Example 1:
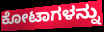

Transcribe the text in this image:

ಕೋಟಾಗಳನ್ನು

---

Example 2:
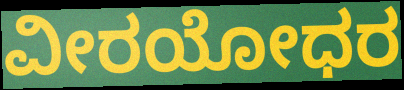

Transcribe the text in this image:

ವೀರಯೋಧರ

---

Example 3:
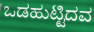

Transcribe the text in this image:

ಒಡಹುಟ್ಟಿದವ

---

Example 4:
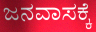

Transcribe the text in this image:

ಜನವಾಸಕ್ಕೆ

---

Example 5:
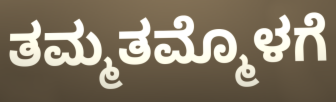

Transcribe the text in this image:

ತಮ್ಮತಮ್ಮೊಳಗೆ